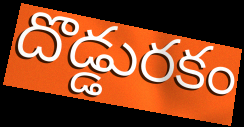
దొడ్డురకం